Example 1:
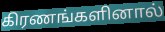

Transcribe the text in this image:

கிரணங்களினால்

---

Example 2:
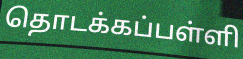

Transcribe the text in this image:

தொடக்கப்பள்ளி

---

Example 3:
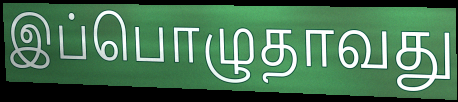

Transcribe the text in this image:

இப்பொழுதாவது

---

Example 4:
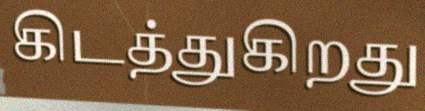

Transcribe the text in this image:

கிடத்துகிறது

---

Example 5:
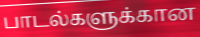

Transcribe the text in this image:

பாடல்களுக்கான